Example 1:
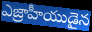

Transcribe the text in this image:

ఎజ్రాహీయుడైన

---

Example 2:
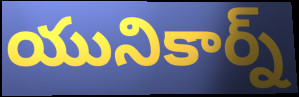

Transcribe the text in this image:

యునికార్న్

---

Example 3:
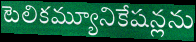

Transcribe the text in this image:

టెలికమ్యూనికేషన్లను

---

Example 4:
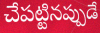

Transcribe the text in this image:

చేపట్టినప్పుడే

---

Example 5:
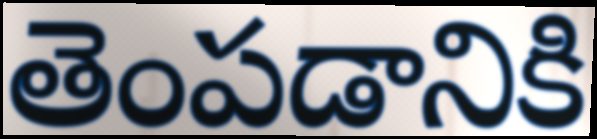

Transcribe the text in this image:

తెంపడానికి